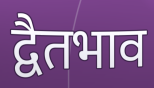
द्वैतभाव